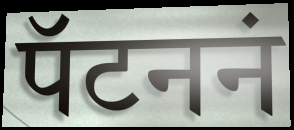
पॅटननं